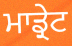
ਮਾਡ੍ਰੇਟ